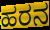
ಹರನ